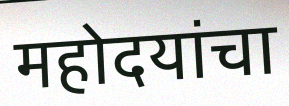
महोदयांचा